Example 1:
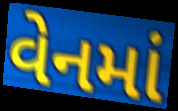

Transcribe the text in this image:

વેનમાં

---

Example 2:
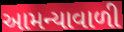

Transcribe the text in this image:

આમન્યાવાળી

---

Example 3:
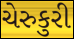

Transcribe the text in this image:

ચેરુકુરી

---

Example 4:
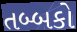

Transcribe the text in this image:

તબ્બકો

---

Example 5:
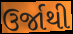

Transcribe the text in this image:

ઉર્જાથી